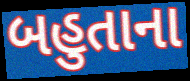
બહુતાના